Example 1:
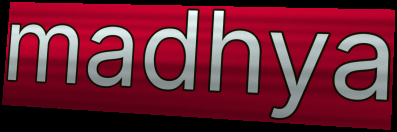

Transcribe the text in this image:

madhya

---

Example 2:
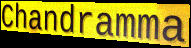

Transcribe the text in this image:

Chandramma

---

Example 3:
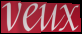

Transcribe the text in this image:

veux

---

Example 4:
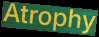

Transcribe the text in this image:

Atrophy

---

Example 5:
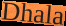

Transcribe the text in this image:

Dhala